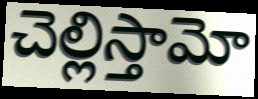
చెల్లిస్తామో